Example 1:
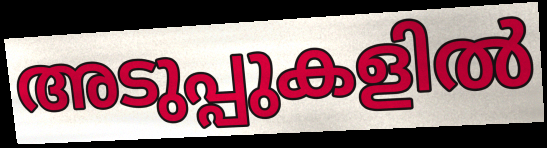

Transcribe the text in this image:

അടുപ്പുകളിൽ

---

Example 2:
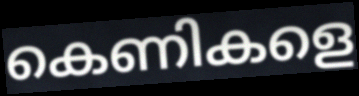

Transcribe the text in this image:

കെണികളെ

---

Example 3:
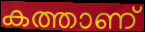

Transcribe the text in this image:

കത്താണ്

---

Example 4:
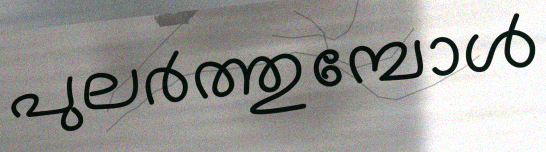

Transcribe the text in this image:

പുലർത്തുമ്പോൾ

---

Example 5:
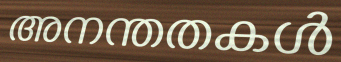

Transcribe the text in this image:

അനന്തതകൾ